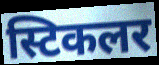
स्टिकलर